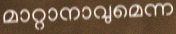
മാറ്റാനാവുമെന്ന